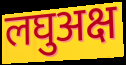
लघुअक्ष